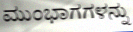
ಮುಂಭಾಗಗಳನ್ನು